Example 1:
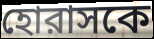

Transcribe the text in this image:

হোরাসকে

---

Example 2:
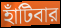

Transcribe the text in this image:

হাঁটিবার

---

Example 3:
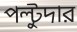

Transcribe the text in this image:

পল্টুদার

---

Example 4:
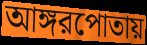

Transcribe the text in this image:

আঙ্গরপোতায়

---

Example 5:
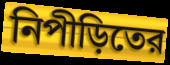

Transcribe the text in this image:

নিপীড়িতের